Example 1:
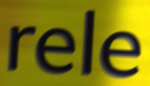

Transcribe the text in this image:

rele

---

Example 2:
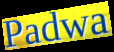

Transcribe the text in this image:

Padwa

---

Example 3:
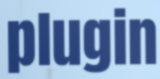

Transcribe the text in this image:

plugin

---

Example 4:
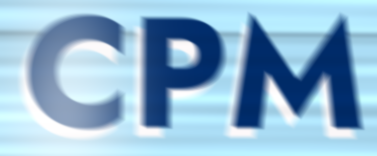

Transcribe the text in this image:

CPM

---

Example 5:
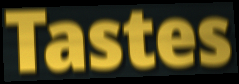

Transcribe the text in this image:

Tastes